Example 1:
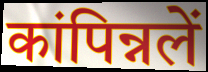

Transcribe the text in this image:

कांपिन्नलें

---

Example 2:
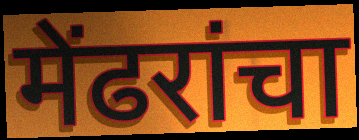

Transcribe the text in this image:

मेंढरांचा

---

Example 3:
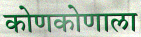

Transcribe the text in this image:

कोणकोणाला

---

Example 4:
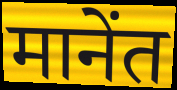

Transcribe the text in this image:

मानेंत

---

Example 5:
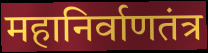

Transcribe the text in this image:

महानिर्वाणतंत्र